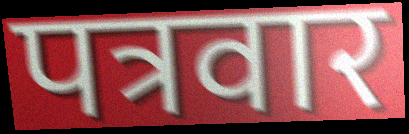
पत्रवार